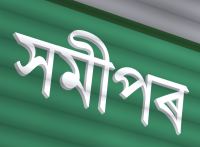
সমীপৰ